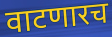
वाटणारच